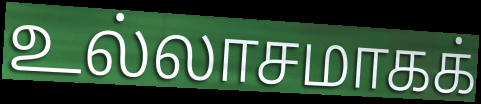
உல்லாசமாகக்